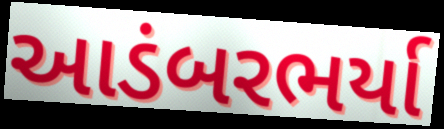
આડંબરભર્યા